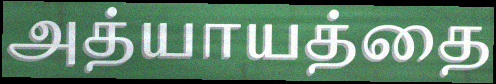
அத்யாயத்தை